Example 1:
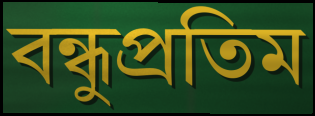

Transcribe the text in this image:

বন্ধুপ্রতিম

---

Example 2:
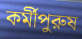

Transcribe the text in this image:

কর্মীপুরুষ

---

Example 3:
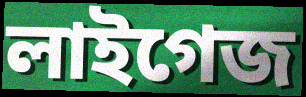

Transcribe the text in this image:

লাইগেজ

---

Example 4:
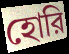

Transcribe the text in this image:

হোরি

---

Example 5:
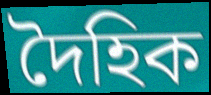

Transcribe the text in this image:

দৈহিক